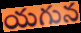
యగున